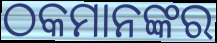
ଠକମାନଙ୍କର